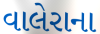
વાલેરાના